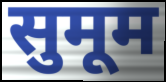
सुमूम